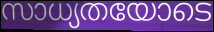
സാധ്യതയോടെ